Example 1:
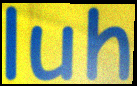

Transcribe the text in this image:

luh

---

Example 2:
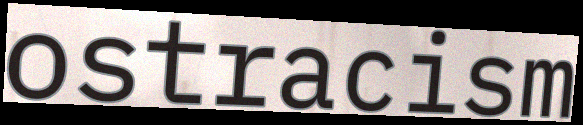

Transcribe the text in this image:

ostracism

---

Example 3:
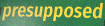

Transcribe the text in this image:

presupposed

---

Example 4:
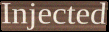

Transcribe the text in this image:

Injected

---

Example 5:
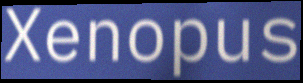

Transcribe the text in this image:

Xenopus